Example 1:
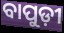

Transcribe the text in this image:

ବାପୁଡ଼ୀ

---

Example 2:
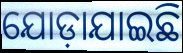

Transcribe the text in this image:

ଯୋଡ଼ାଯାଇଛି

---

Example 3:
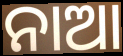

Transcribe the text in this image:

ନାଆ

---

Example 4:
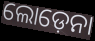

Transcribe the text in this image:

ଲୋଡ଼େନା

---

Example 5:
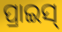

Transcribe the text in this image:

ପ୍ରାଇସ୍